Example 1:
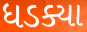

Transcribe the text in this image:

ધડક્યા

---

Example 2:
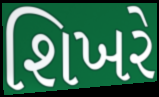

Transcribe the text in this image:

શિખરે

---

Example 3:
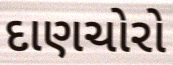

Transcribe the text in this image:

દાણચોરો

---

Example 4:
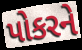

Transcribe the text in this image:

પોકરને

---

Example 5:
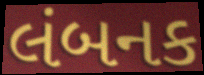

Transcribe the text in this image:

લંબનક